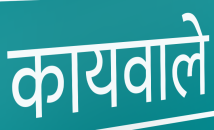
कायवाले